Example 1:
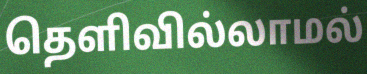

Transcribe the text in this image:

தெளிவில்லாமல்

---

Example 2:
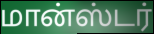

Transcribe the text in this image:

மான்ஸ்டர்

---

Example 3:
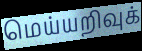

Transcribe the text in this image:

மெய்யறிவுக்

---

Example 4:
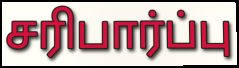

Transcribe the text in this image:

சரிபார்ப்பு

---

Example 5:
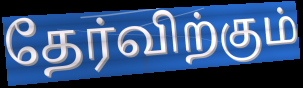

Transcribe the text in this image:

தேர்விற்கும்